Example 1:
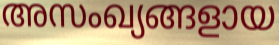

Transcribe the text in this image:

അസംഖ്യങ്ങളായ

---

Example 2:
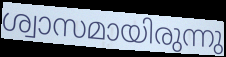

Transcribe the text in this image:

ശ്വാസമായിരുന്നു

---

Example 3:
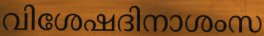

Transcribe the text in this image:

വിശേഷദിനാശംസ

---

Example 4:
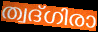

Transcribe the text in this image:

ത്വദ്ഗിരാ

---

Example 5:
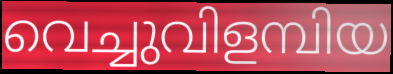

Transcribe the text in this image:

വെച്ചുവിളമ്പിയ